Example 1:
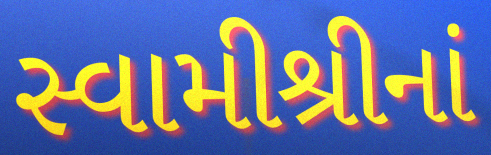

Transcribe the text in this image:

સ્વામીશ્રીનાં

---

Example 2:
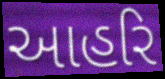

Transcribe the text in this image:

આહરિ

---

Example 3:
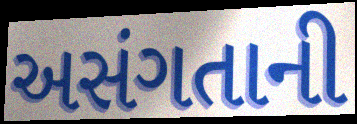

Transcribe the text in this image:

અસંગતાની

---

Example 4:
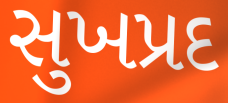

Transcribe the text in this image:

સુખપ્રદ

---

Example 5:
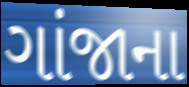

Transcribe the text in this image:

ગાંજાના